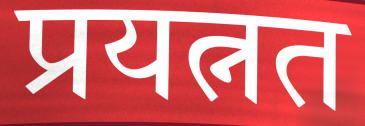
प्रयत्नत